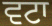
ਵਟਾ